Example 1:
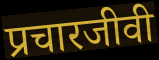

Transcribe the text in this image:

प्रचारजीवी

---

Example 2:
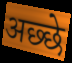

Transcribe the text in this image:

अछ्छे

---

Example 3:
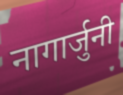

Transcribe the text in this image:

नागार्जुनी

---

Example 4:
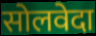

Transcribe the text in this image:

सोलवेदा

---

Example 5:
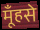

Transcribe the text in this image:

मूँहसे